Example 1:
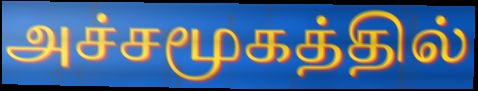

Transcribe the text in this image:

அச்சமூகத்தில்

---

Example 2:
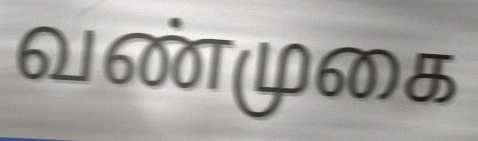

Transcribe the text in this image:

வண்முகை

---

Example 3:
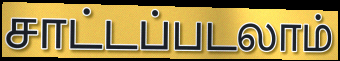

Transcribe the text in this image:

சாட்டப்படலாம்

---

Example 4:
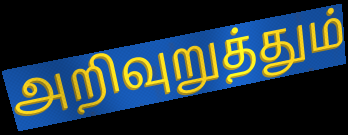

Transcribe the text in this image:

அறிவுறுத்தும்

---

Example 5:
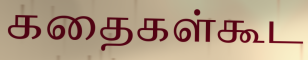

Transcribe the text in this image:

கதைகள்கூட